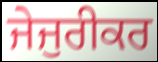
ਜੇਜੁਰੀਕਰ